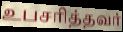
உபசரித்தவர்